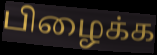
பிழைக்க